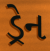
ડ્રેન